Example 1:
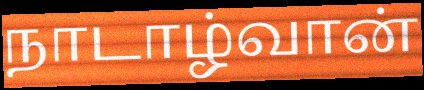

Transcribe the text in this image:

நாடாழ்வான்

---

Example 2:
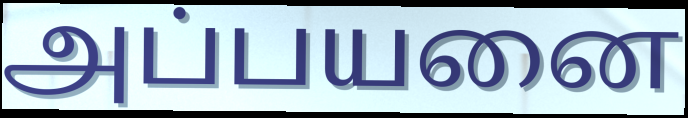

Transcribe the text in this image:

அப்பயனை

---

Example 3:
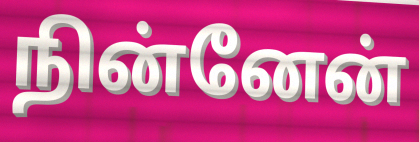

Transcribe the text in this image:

நின்னேன்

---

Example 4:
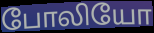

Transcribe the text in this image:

போலியோ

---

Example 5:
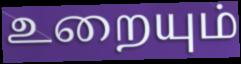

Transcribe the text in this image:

உறையும்